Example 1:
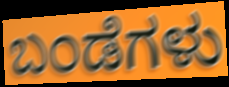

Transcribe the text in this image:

ಬಂಡೆಗಳು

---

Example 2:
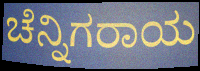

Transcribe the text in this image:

ಚೆನ್ನಿಗರಾಯ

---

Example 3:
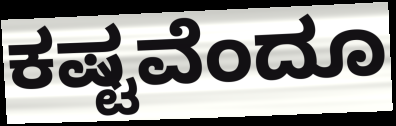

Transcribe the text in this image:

ಕಷ್ಟವೆಂದೂ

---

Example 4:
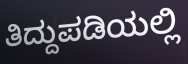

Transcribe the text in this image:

ತಿದ್ದುಪಡಿಯಲ್ಲಿ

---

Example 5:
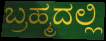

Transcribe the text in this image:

ಬ್ರಹ್ಮದಲ್ಲಿ